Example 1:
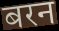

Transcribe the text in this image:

बरन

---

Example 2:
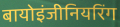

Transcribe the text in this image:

बायोइंजीनियरिंग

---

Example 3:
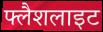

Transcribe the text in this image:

फ्लैशलाइट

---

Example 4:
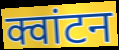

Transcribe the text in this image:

क्वांटन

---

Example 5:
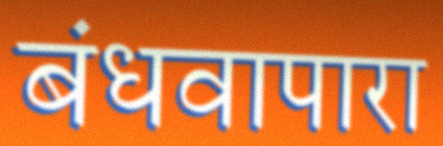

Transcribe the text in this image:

बंधवापारा